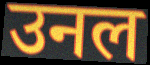
उनल